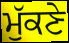
ਮੁੱਕਣੇ